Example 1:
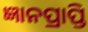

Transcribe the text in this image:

ଜ୍ଞାନପ୍ରାପ୍ତି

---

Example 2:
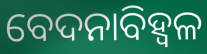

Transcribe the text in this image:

ବେଦନାବିହ୍ୱଳ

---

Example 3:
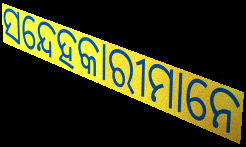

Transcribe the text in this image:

ସନ୍ଦେହକାରୀମାନେ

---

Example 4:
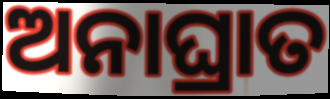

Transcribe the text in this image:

ଅନାଘ୍ରାତ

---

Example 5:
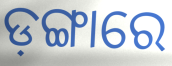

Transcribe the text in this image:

ଡ଼ଙ୍ଗାରେ